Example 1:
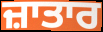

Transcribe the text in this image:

ਜ਼ਾਤਾਰ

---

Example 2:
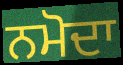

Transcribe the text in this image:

ਨਮੋਦਾ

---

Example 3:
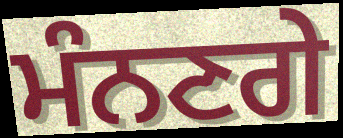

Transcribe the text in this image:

ਮੰਨਣਗੇ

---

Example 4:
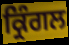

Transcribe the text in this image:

ਕ੍ਰਿੰਗਲ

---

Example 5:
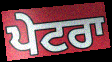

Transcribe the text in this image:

ਪੇਟਰਾ